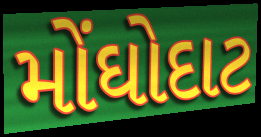
મોંઘોદાટ